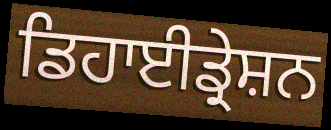
ਡਿਹਾਈਡ੍ਰੇਸ਼ਨ